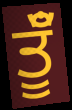
ਤੂੰਁ